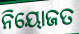
ନିୟୋଜତ